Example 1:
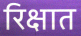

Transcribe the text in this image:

रिक्षात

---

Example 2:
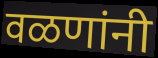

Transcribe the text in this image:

वळणांनी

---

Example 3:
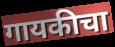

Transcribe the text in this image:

गायकीचा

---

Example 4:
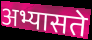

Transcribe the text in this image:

अभ्यासते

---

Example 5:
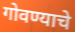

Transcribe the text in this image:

गोवण्याचे